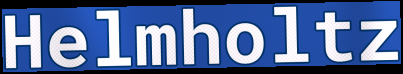
Helmholtz